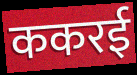
ककरई